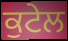
ਕੁਟੇਲ